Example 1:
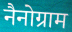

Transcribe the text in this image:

नैनोग्राम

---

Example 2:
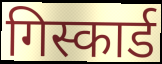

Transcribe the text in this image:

गिस्कार्ड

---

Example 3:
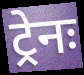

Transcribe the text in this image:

ट्रेनः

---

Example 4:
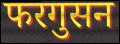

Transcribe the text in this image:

फरगुसन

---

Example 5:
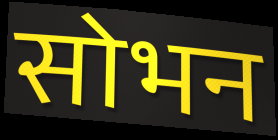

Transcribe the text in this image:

सोभन